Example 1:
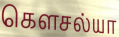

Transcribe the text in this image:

கௌசல்யா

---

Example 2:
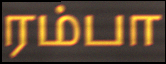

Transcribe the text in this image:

ரம்பா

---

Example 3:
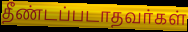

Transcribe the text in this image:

தீண்டப்படாதவர்கள்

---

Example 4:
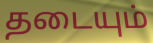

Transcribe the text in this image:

தடையும்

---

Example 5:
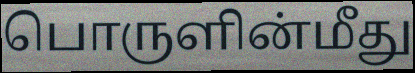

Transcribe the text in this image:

பொருளின்மீது